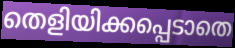
തെളിയിക്കപ്പെടാതെ